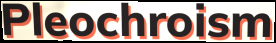
Pleochroism